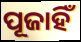
ପୂଜାହିଁ